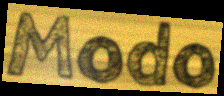
Modo